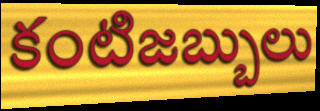
కంటిజబ్బులు